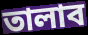
তালাব